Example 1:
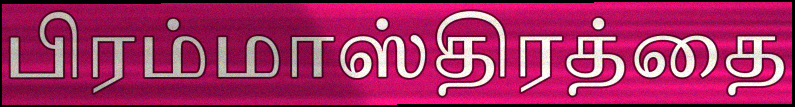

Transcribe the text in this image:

பிரம்மாஸ்திரத்தை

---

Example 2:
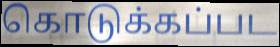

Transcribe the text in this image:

கொடுக்கப்பட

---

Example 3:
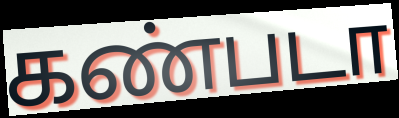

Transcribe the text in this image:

கண்படா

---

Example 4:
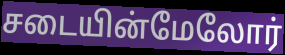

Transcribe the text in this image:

சடையின்மேலோர்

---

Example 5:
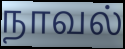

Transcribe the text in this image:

நாவல்